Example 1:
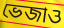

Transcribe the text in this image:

ভেজাও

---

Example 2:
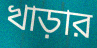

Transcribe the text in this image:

খাড়ার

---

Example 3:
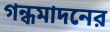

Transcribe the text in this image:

গন্ধমাদনের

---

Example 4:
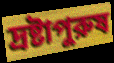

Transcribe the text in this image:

দ্রষ্টাপুরুষ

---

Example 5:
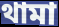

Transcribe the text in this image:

থামা